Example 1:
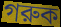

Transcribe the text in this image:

গরুক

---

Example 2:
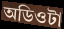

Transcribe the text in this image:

অডিওটা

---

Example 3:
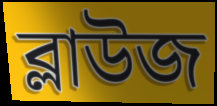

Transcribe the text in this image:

ব্লাউজ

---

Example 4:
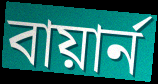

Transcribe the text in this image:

বায়ার্ন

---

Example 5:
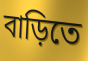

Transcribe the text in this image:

বাড়িতে